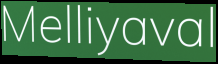
Melliyaval